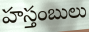
హస్తంబులు